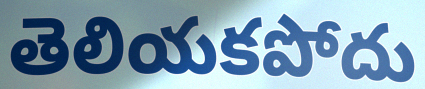
తెలియకపోదు